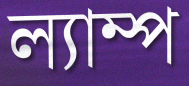
ল্যাম্প